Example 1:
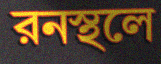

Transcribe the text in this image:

রনস্থলে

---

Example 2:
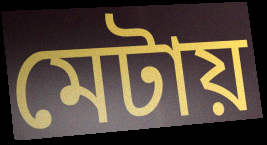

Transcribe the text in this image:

মেটায়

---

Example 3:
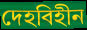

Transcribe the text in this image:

দেহবিহীন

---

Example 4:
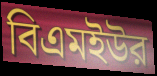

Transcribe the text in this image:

বিএমইউর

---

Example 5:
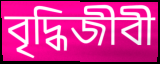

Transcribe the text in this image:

বৃদ্ধিজীবী